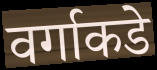
वर्गाकडे